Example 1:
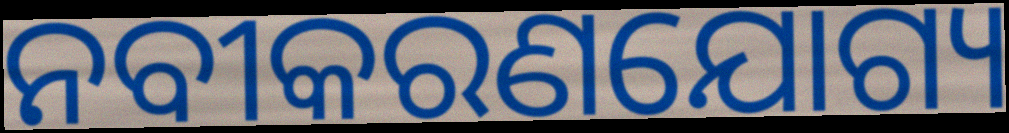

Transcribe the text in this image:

ନବୀକରଣଯୋଗ୍ୟ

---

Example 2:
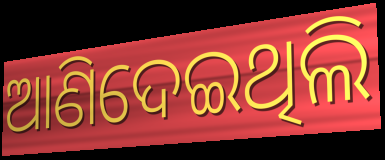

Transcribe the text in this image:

ଆଣିଦେଇଥିଲି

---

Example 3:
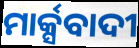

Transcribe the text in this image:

ମାର୍କ୍ସବାଦୀ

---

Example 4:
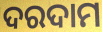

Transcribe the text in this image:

ଦରଦାମ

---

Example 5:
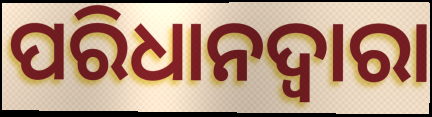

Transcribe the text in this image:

ପରିଧାନଦ୍ୱାରା